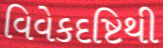
વિવેકદષ્ટિથી